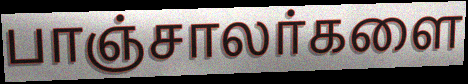
பாஞ்சாலர்களை